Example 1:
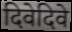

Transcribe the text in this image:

दिवेदिवे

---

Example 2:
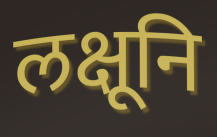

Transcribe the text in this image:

लक्षूनि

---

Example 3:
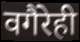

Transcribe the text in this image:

वगैरेही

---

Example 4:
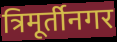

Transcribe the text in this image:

त्रिमूर्तीनगर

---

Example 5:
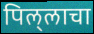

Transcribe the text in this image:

पिल्लाचा